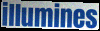
illumines